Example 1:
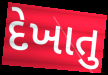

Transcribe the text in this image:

દેખાતુ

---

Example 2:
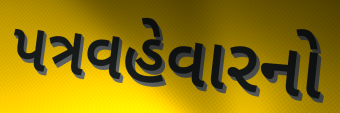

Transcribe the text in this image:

પત્રવહેવારનો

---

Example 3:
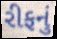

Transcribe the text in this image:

રીફનું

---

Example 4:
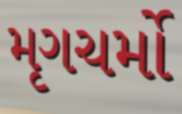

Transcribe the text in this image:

મૃગચર્મો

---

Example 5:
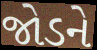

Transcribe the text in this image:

જોડને